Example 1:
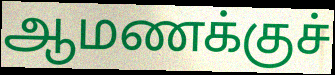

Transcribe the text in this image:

ஆமணக்குச்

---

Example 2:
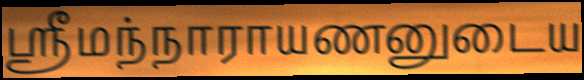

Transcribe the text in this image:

ஸ்ரீமந்நாராயணனுடைய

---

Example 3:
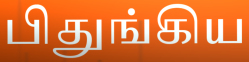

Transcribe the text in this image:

பிதுங்கிய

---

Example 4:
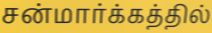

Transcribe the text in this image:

சன்மார்க்கத்தில்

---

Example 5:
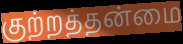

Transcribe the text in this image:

குற்றத்தன்மை